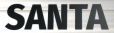
SANTA